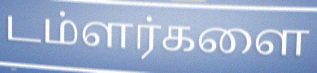
டம்ளர்களை